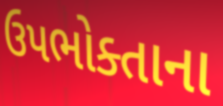
ઉપભોક્તાના